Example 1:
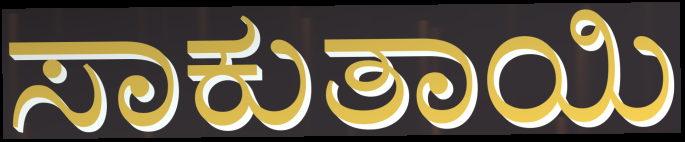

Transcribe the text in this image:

ಸಾಕುತಾಯಿ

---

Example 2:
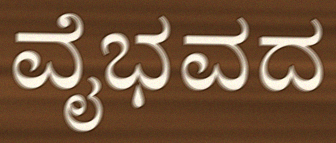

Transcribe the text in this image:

ವೈಭವದ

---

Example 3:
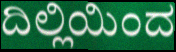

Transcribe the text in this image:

ದಿಲ್ಲಿಯಿಂದ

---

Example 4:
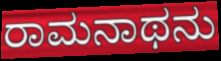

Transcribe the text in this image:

ರಾಮನಾಥನು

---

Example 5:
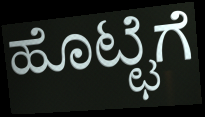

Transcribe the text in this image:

ಹೊಟ್ಟೆಗೆ